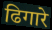
ढिगारे